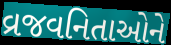
વ્રજવનિતાઓને